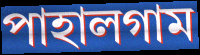
পাহালগাম